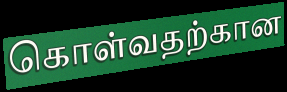
கொள்வதற்கான